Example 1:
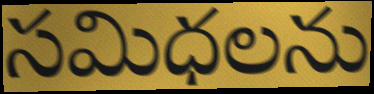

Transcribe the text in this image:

సమిధలను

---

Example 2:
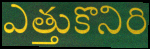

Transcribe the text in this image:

ఎత్తుకొనిరి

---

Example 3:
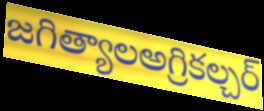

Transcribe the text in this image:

జగిత్యాలఅగ్రికల్చర్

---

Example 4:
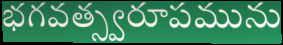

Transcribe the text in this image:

భగవత్స్వరూపమును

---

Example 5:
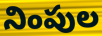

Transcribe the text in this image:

నింపుల